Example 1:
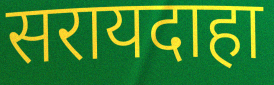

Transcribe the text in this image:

सरायदाहा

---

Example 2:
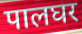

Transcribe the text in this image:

पालघर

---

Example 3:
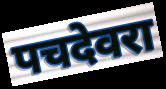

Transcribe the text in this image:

पचदेवरा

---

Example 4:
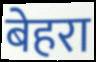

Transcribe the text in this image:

बेहरा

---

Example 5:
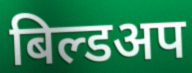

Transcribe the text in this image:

बिल्डअप